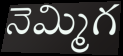
నెమ్మిగ